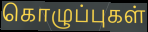
கொழுப்புகள்